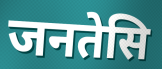
जनतेसि